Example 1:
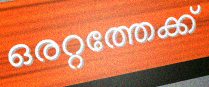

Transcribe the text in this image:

ഒരറ്റത്തേക്ക്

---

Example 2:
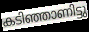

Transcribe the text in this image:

കടിഞ്ഞാണിട്ടു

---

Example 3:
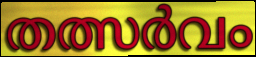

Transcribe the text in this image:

തത്സർവം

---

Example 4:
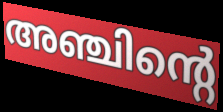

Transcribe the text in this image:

അഞ്ചിന്റെ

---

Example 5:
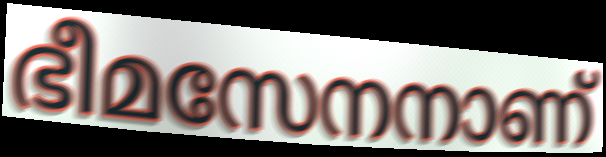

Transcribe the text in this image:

ഭീമസേനനാണ്